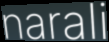
narali